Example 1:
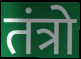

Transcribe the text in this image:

तंत्रो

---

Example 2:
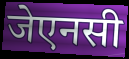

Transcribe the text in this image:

जेएनसी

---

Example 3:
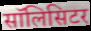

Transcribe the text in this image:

सॉलिसिटर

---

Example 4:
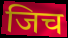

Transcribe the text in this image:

जिच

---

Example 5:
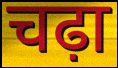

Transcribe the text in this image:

चढ़ा